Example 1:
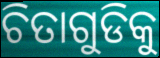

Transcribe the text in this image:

ଚିତାଗୁଡିକୁ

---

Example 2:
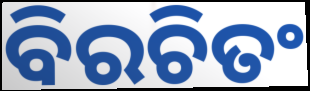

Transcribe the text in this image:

ବିରଚିତଂ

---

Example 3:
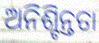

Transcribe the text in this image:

ଅନିଶ୍ଚିନ୍ତତା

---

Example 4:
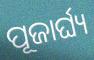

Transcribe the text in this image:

ପୂଜାର୍ଘ୍ୟ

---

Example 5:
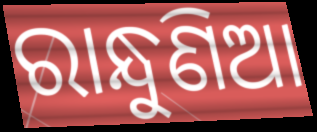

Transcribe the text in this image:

ରାନ୍ଧୁଣିଆ